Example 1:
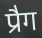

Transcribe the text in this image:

प्रैग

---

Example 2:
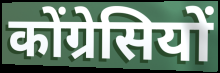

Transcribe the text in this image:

कोंग्रेसियों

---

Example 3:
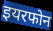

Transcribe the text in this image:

इयरफोन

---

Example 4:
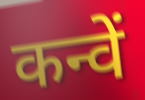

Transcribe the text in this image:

कन्वें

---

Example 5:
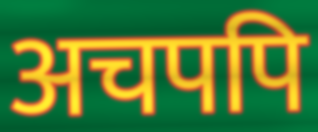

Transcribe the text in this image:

अचपपि